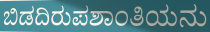
ಬಿಡದಿರುಪಶಾಂತಿಯನು